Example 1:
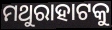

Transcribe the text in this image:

ମଥୁରାହାଟକୁ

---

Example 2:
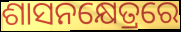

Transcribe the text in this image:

ଶାସନକ୍ଷେତ୍ରରେ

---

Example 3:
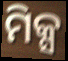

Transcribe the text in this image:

ମିକ୍ସ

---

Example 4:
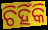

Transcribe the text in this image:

ଚିହିଁକି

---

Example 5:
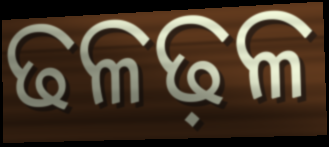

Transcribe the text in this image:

ଢଳଢ଼ଳ